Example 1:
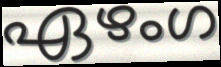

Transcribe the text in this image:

ഏഴംഗ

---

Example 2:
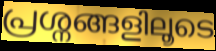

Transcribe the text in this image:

പ്രശ്നങ്ങളിലൂടെ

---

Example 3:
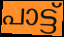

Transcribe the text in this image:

പാട്ട്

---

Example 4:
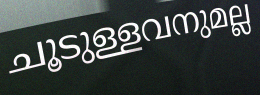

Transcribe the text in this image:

ചൂടുള്ളവനുമല്ല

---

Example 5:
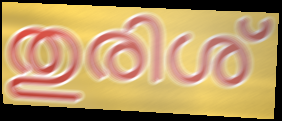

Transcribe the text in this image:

തുരിശ്